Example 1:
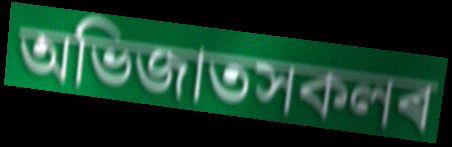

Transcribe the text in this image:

অভিজাতসকলৰ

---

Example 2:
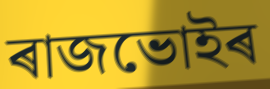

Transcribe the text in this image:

ৰাজভোইৰ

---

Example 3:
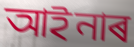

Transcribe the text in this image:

আইনাৰ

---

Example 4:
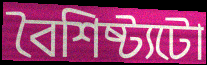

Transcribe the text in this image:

বৈশিষ্ট্যটো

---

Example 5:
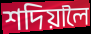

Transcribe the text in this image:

শদিয়ালৈ